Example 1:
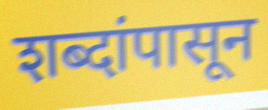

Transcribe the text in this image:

शब्दांपासून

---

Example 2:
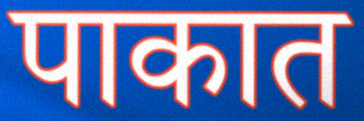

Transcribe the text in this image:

पाकात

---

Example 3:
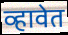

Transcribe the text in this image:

व्हावेत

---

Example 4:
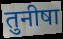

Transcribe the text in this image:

तुनीषा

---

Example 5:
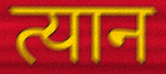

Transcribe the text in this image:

त्यान